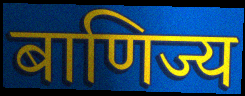
बाणिज्य